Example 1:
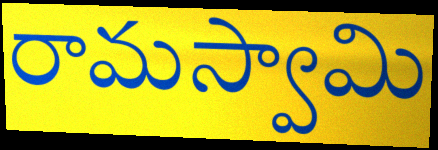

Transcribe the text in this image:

రామస్వామి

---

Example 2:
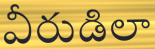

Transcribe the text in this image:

వీరుడిలా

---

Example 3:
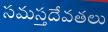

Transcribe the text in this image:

సమస్తదేవతలు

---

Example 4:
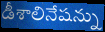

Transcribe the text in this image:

డీశాలినేషన్ను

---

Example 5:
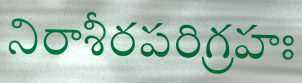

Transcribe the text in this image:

నిరాశీరపరిగ్రహః